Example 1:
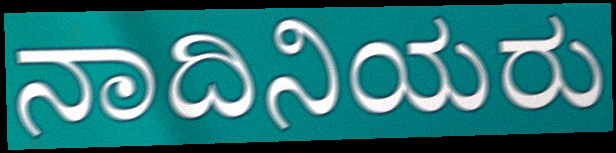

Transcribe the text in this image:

ನಾದಿನಿಯರು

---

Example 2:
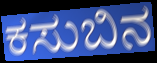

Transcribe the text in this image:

ಕಸುಬಿನ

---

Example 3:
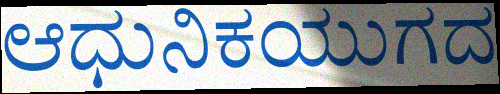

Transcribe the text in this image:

ಆಧುನಿಕಯುಗದ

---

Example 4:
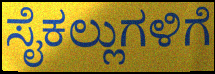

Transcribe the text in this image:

ಸೈಕಲ್ಲುಗಳಿಗೆ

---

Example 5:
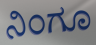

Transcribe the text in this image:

ನಿಂಗೂ